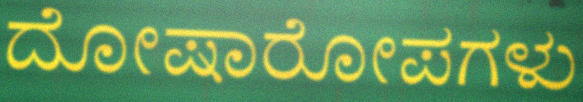
ದೋಷಾರೋಪಗಳು